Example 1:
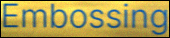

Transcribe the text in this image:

Embossing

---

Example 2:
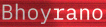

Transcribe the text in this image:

Bhoyrano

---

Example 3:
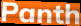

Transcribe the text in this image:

Panth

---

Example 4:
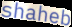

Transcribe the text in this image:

shaheb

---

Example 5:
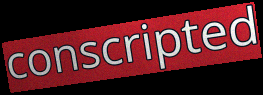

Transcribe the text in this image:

conscripted